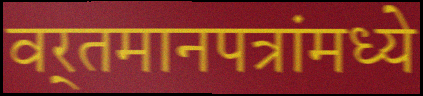
वर्तमानपत्रांमध्ये